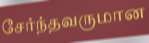
சேர்ந்தவருமான